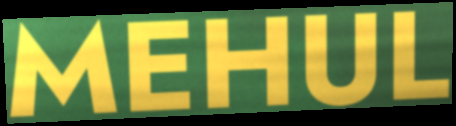
MEHUL